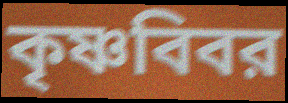
কৃষ্ণবিবর